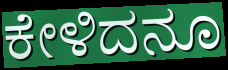
ಕೇಳಿದನೂ